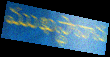
ముఖస్థానాన